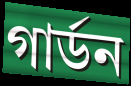
গার্ডন